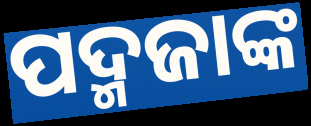
ପଦ୍ମଜାଙ୍କ